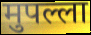
मुपल्ला